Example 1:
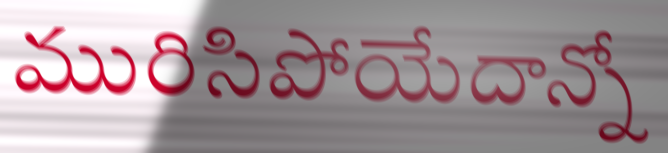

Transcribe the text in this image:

మురిసిపోయేదాన్నో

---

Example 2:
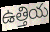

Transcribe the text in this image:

ఉత్తియ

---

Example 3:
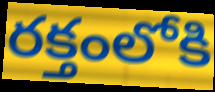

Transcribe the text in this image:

రక్తంలోకి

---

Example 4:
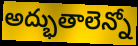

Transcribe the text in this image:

అద్భుతాలెన్నో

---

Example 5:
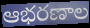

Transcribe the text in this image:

ఆభరణాల